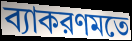
ব্যাকরণমতে